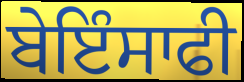
ਬੇਇੰਸਾਫੀ